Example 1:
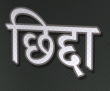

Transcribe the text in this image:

छिद्दा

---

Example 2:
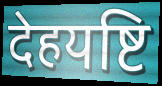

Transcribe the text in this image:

देहयष्टि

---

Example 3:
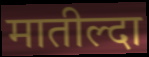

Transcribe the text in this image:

मातील्‍दा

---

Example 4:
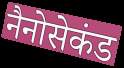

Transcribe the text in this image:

नैनोसेकंड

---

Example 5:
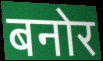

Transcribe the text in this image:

बनोर